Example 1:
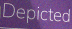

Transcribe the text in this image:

Depicted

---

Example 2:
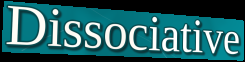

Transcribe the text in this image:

Dissociative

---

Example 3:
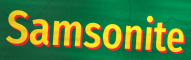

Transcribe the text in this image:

Samsonite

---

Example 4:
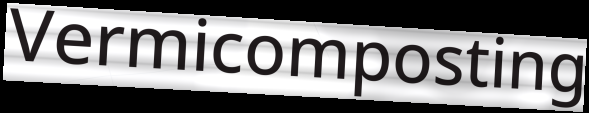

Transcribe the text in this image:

Vermicomposting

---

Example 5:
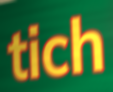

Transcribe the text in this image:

tich